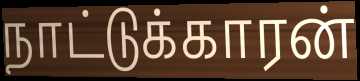
நாட்டுக்காரன்